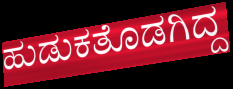
ಹುಡುಕತೊಡಗಿದ್ದ